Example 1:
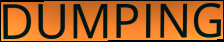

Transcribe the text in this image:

DUMPING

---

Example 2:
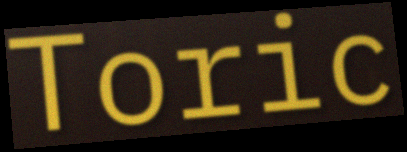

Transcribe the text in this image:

Toric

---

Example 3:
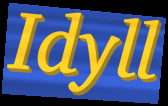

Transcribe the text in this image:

Idyll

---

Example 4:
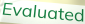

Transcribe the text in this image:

Evaluated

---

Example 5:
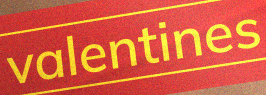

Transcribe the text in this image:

valentines